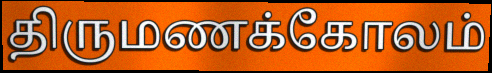
திருமணக்கோலம்